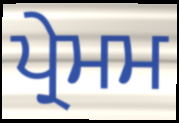
ਪ੍ਰੇਮਮ